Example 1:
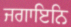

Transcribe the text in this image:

ਜਗਾਇਨਿ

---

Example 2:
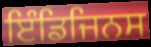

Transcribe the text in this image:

ਇੰਡਿਜਿਨਸ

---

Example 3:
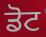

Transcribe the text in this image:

ਡੋਟ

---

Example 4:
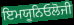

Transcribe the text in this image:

ਇਮਯੂਨਿਓਲੋਜੀ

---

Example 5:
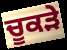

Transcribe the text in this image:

ਚੂਕੜੇ